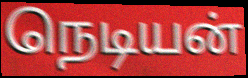
நெடியன்